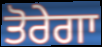
ਤੋਰੇਗਾ